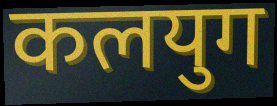
कलयुग